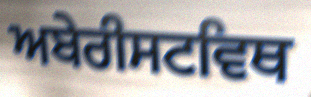
ਅਬੇਰੀਸਟਵਿਥ